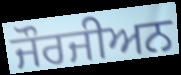
ਜੌਰਜੀਅਨ